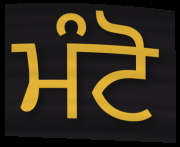
ਮੰਟੋ